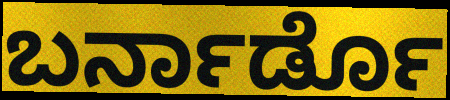
ಬರ್ನಾರ್ಡೊ